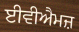
ਈਵੀਐਮਜ਼